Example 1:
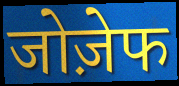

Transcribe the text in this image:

जोज़ेफ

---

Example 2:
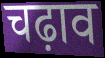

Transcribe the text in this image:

चढ़ाव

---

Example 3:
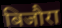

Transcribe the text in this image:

बिजौरा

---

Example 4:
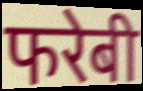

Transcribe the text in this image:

फरेबी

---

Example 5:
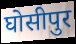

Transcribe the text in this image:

घोसीपुर